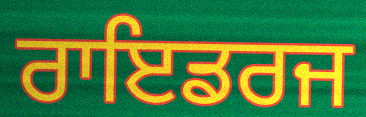
ਰਾਇਡਰਜ